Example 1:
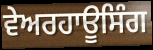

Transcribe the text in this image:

ਵੇਅਰਹਾਊਸਿੰਗ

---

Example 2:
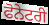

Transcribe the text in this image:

ਫੋਨੇਟਰੀ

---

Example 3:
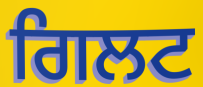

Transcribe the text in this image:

ਗਿਲਟ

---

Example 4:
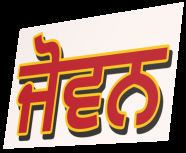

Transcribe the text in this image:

ਜੋਵਨ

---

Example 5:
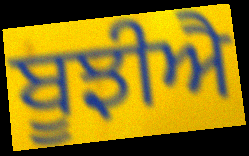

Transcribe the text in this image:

ਬੂਝੀਐ